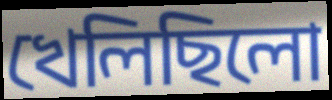
খেলিছিলো